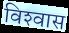
विश्वास